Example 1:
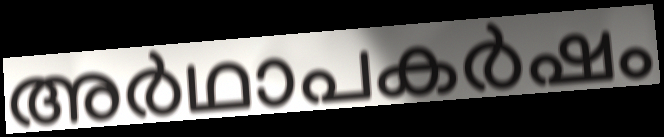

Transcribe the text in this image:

അർഥാപകർഷം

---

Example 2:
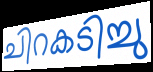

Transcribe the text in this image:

ചിറകടിച്ചു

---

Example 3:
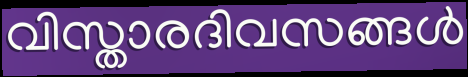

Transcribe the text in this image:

വിസ്താരദിവസങ്ങൾ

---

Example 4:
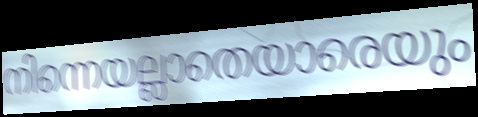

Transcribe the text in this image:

നിന്നെയല്ലാതെയാരെയും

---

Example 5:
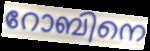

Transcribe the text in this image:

റോബിനെ